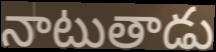
నాటుతాడు